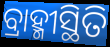
ବ୍ରାହ୍ମୀସ୍ଥିତି